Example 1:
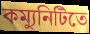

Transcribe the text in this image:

কম্যুনিটিতে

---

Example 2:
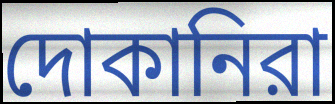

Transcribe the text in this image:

দোকানিরা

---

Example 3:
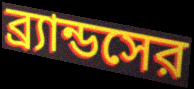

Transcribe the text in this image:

ব্র্যান্ডসের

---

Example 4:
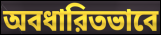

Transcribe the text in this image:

অবধারিতভাবে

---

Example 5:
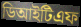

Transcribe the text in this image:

ডিআইটিএফ